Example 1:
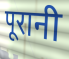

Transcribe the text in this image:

पूरानी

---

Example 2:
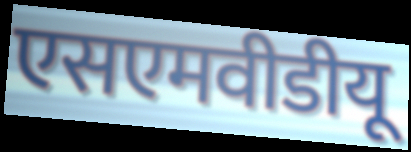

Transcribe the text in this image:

एसएमवीडीयू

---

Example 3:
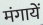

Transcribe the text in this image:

मंगायें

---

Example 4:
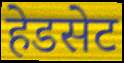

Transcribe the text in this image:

हेडसेट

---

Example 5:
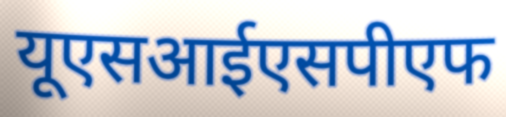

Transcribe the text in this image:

यूएसआईएसपीएफ